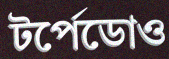
টর্পেডোও